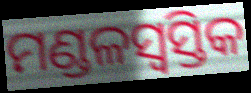
ମଣ୍ଡଳସ୍ୱସ୍ତିକ